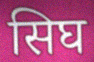
सिघ